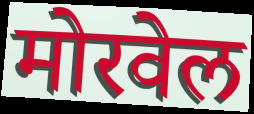
मोरवेल